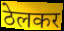
ठेलकर